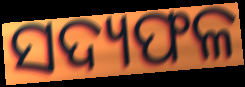
ସଦ୍ୟଫଳ